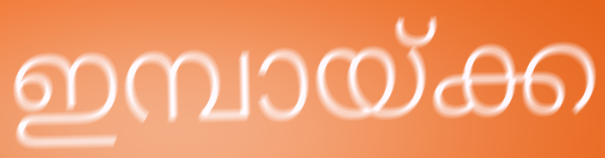
ഇമ്പായ്ക്ക